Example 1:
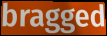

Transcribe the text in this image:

bragged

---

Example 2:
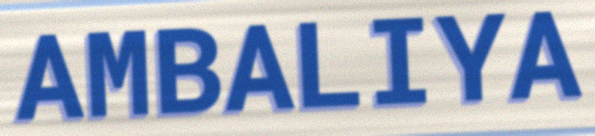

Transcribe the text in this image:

AMBALIYA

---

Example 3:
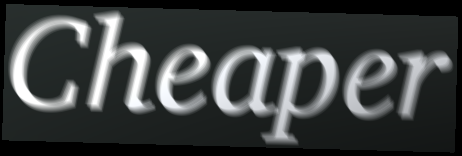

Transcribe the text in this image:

Cheaper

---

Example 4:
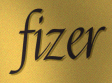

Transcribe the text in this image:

fizer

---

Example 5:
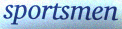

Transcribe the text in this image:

sportsmen